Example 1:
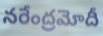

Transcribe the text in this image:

నరేంద్రమోదీ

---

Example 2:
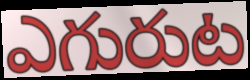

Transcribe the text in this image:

ఎగురుట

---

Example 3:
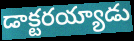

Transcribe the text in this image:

డాక్టరయ్యాడు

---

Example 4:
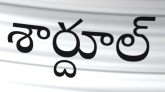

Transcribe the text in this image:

శార్దూల్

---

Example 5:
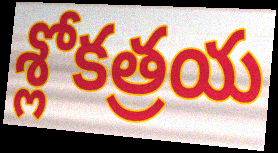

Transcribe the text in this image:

శ్లోకత్రయ